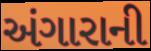
અંગારાની